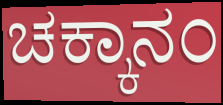
ಚಕ್ಕಾನಂ